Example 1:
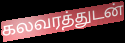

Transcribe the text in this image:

கலவரத்துடன்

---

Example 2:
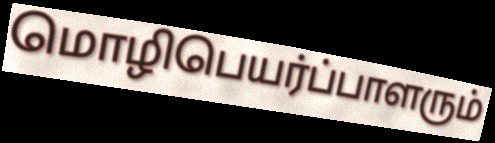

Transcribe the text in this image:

மொழிபெயர்ப்பாளரும்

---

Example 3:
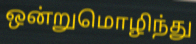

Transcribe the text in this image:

ஒன்றுமொழிந்து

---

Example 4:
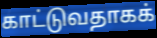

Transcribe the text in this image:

காட்டுவதாகக்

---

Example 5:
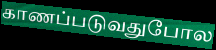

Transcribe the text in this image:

காணப்படுவதுபோல